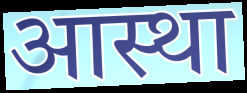
आस्था